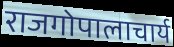
राजगोपालाचार्य